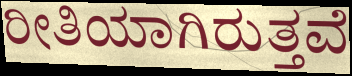
ರೀತಿಯಾಗಿರುತ್ತವೆ